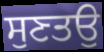
ਸੁਣਤਉ